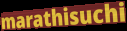
marathisuchi